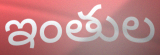
ఇంతుల